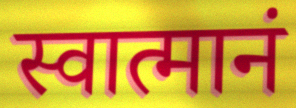
स्वात्मानं